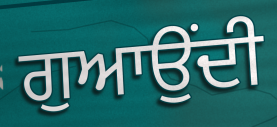
ਗੁਆਉਂਦੀ